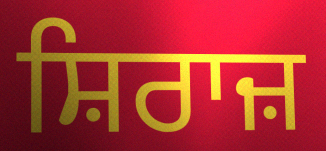
ਸ਼ਿਰਾਜ਼